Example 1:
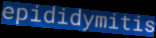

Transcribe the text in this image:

epididymitis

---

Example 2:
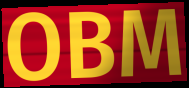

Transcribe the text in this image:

OBM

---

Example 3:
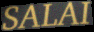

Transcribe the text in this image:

SALAI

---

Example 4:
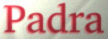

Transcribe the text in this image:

Padra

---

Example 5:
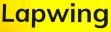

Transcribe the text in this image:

Lapwing